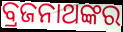
ବ୍ରଜନାଥଙ୍କର